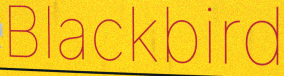
Blackbird